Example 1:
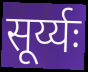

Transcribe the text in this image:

सूर्य्यः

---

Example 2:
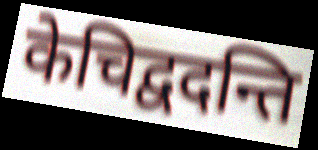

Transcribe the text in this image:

केचिद्वदन्ति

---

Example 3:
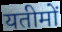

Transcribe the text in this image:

यतीमों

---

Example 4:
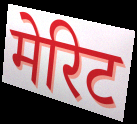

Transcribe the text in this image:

मेरिट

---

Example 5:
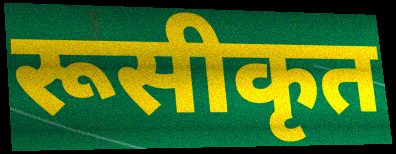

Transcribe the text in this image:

रूसीकृत